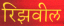
रिझवील